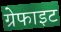
ग्रेफाइट